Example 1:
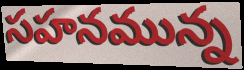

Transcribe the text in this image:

సహనమున్న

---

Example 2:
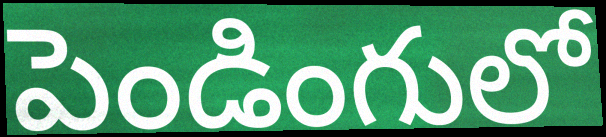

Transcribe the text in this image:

పెండింగులో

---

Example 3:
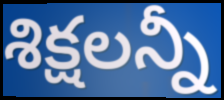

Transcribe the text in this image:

శిక్షలన్నీ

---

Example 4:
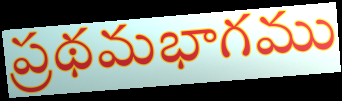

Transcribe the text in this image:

ప్రథమభాగము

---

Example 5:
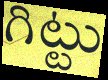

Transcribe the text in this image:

గిట్టు